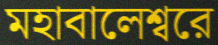
মহাবালেশ্বরে